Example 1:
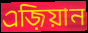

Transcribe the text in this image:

এজ়িয়ান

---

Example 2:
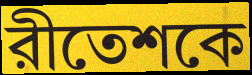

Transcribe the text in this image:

রীতেশকে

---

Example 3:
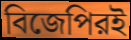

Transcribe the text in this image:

বিজেপিরই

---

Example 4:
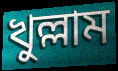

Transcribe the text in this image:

খুল্লাম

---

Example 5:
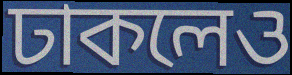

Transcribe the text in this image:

ঢাকলেও